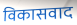
विकासवाद